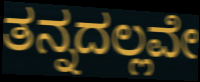
ತನ್ನದಲ್ಲವೇ